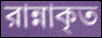
রান্নাকৃত